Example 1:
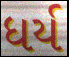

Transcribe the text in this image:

ધર્ય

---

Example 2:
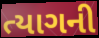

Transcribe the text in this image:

ત્યાગની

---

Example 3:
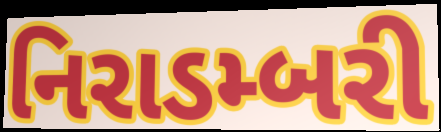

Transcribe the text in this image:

નિરાડમ્બરી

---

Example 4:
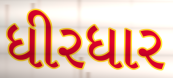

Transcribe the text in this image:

ધીરધાર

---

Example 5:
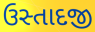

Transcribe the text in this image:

ઉસ્તાદજી